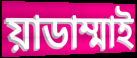
য়াডাম্মাই